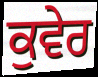
ਕੁਵੇਰ